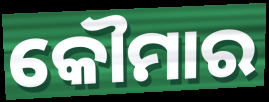
କୌମାର